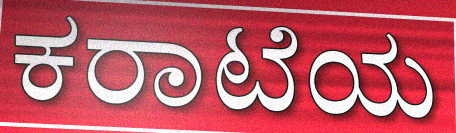
ಕರಾಟೆಯ